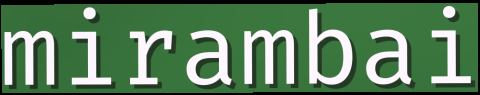
mirambai